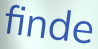
finde